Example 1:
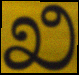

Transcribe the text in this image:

ಖಿ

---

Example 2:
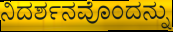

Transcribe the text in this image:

ನಿದರ್ಶನವೊಂದನ್ನು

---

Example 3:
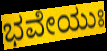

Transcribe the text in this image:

ಭವೇಯುಃ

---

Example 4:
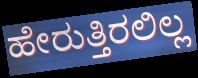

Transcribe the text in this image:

ಹೇರುತ್ತಿರಲಿಲ್ಲ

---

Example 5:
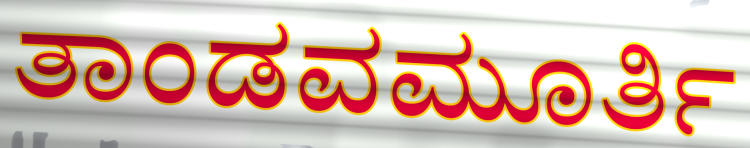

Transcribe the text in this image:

ತಾಂಡವಮೂರ್ತಿ